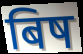
बिष